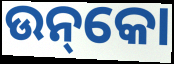
ଉନ୍‌କୋ